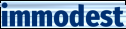
immodest